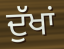
ਦੁੱਖਾਂ